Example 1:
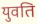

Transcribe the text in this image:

युवति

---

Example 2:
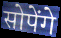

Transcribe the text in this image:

सोपेंगे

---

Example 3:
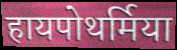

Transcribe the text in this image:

हायपोथर्मिया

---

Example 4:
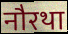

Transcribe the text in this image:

नौरथा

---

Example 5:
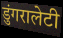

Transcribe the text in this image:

डुंगरालेटी